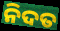
ନିଦତ